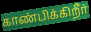
காண்பிக்கிறீர்